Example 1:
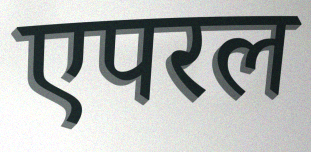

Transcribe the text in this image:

एपरल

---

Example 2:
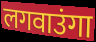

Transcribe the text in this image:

लगवाउंगा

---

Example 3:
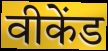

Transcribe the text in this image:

वीकेंड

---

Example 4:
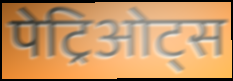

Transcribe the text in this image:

पेट्रिओट्स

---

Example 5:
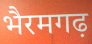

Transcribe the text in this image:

भैरमगढ़